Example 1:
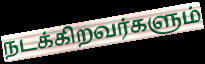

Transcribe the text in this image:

நடக்கிறவர்களும்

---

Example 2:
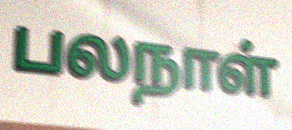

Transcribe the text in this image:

பலநாள்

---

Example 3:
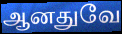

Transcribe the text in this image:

ஆனதுவே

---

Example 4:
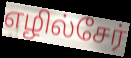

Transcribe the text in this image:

எழில்சேர்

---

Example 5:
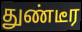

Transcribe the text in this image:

துண்டீர